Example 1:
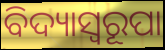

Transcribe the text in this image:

ବିଦ୍ୟାସ୍ୱରୂପା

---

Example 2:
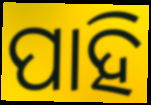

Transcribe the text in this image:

ପାହି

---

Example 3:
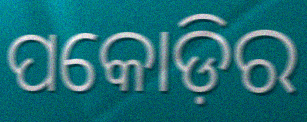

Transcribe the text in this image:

ପକୋଡ଼ିର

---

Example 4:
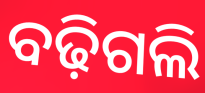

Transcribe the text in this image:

ବଢ଼ିଗଲି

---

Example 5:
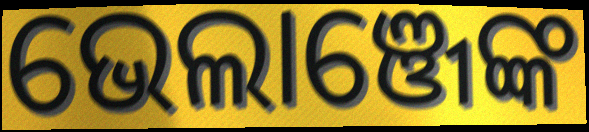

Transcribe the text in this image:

ଭେଲାଞ୍ଜେଙ୍କ